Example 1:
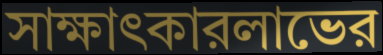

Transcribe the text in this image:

সাক্ষাৎকারলাভের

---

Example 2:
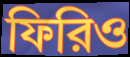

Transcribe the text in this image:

ফিরিও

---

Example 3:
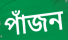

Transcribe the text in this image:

পাঁজন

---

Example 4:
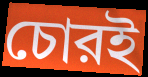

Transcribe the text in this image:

চোরই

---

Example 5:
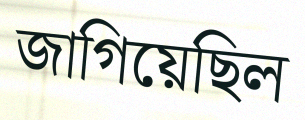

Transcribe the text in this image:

জাগিয়েছিল